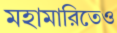
মহামারিতেও